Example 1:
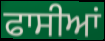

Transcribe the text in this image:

ਫਾਸੀਆਂ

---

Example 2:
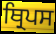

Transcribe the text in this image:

ਥ੍ਰਿਪਸ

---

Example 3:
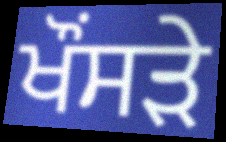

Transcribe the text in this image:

ਖੌਂਸੜੇ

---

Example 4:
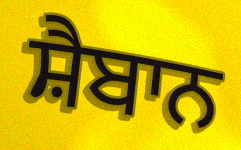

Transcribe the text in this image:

ਸ਼ੈਬਾਨ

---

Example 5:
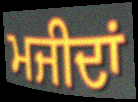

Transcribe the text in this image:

ਮਜੀਦਾਂ